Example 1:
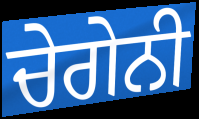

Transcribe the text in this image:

ਚੇਗੇਨੀ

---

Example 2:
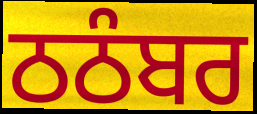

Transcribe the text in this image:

ਠਠੰਬਰ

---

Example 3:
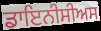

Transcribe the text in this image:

ਡਾਇਨੀਸੀਅਸ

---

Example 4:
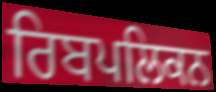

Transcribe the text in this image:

ਰਿਬਪਲਿਕਨ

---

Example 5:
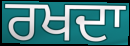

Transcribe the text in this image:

ਰਖਦਾ